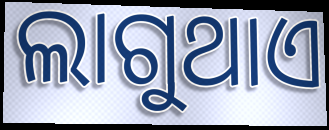
ଲାଗୁଥାଏ